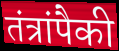
तंत्रांपैकी